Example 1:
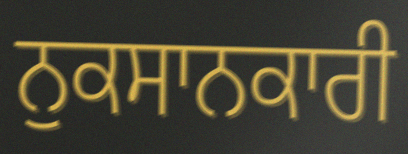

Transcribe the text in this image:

ਨੁਕਸਾਨਕਾਰੀ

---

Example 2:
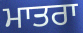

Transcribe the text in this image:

ਮਾਤਰਾ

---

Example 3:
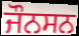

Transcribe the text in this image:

ਜੌਨਸਨ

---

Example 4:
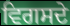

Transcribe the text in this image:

ਵਿਗਸਦੇ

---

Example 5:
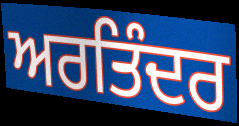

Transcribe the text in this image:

ਅਰਤਿੰਦਰ